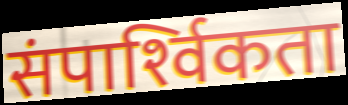
संपार्श्विकता